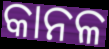
କାନଳ